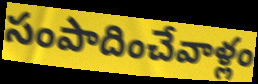
సంపాదించేవాళ్లం